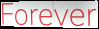
Forever